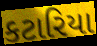
કટારિયા